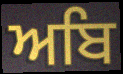
ਅਬਿ